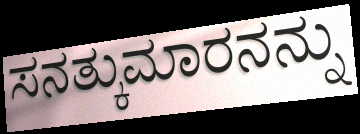
ಸನತ್ಕುಮಾರನನ್ನು